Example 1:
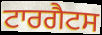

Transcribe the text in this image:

ਟਾਰਗੈਟਸ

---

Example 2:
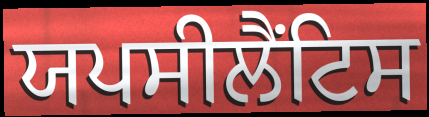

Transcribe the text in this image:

ਯਪਸੀਲੈਂਟਿਸ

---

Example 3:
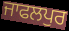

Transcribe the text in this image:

ਜਾਫਲਪੁਰ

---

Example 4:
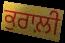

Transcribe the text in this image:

ਕੁਰਾਲ਼ੀ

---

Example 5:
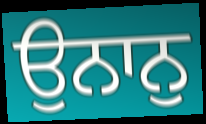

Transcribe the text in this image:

ਉਨਾਨੁ